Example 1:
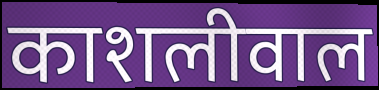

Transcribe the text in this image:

काशलीवाल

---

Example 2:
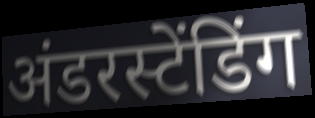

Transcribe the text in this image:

अंडरस्टेंडिंग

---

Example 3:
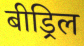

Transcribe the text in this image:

बीड्रिल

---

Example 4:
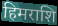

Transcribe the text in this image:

हिमराशि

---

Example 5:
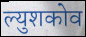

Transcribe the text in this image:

ल्युशकोव